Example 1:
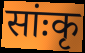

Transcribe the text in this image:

सांःकृ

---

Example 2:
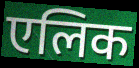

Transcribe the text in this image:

एलिक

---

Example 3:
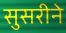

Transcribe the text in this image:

सुसरीने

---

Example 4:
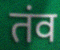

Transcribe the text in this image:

तंव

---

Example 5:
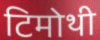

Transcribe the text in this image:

टिमोथी